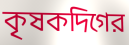
কৃষকদিগের